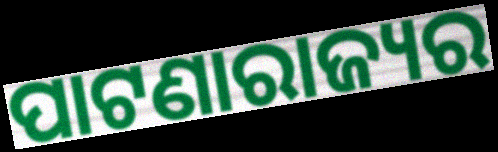
ପାଟଣାରାଜ୍ୟର